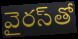
వైరస్‌తో